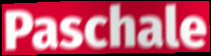
Paschale